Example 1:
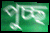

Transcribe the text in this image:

পুচ্ছ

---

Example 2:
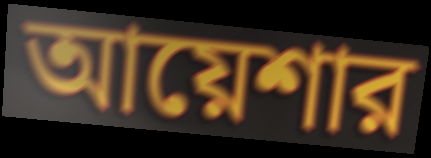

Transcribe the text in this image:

আয়েশার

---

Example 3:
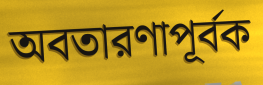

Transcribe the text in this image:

অবতারণাপূর্বক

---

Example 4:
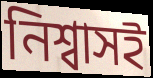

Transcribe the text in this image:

নিশ্বাসই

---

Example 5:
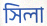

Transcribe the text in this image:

সিলা